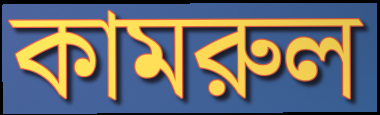
কামরুল